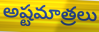
అష్టమాత్రలు